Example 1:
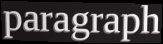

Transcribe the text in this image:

paragraph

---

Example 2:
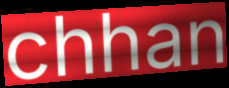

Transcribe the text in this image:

chhan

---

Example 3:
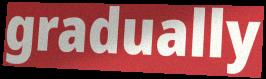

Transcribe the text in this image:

gradually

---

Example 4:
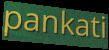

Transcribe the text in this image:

pankati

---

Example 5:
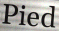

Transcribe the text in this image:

Pied